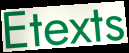
Etexts